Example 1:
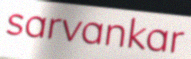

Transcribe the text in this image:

sarvankar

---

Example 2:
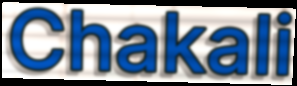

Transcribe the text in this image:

Chakali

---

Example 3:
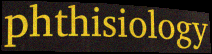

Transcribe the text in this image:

phthisiology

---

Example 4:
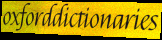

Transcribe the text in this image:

oxforddictionaries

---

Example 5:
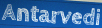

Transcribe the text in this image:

Antarvedi